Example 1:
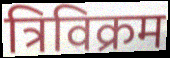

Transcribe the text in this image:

त्रिविक्रम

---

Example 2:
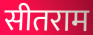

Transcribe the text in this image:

सीतराम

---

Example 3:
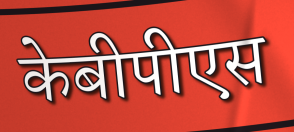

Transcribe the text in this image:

केबीपीएस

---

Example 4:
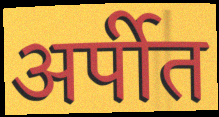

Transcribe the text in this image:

अर्पीत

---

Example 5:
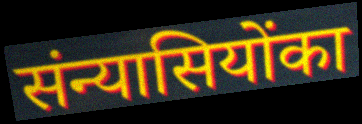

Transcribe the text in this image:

संन्यासियोंका